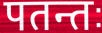
पतन्तः